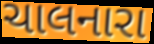
ચાલનારા